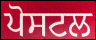
ਪੋਸਟਲ